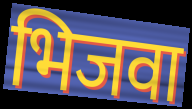
भिजवा